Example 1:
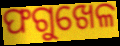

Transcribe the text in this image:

ଫଗୁଖେଳ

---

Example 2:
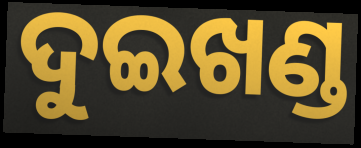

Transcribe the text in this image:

ଦୁଇଖଣ୍ଡ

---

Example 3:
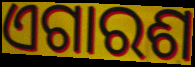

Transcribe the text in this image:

ଏଗାରଶ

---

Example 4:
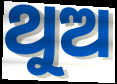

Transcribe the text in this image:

ଥୁଅ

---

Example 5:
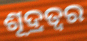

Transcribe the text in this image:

ଶୂଦ୍ରତ୍ଵର